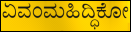
ಏವಂಮಹಿದ್ಧಿಕೋ